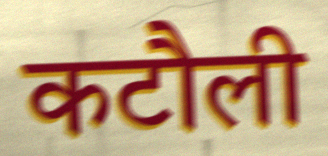
कटौली